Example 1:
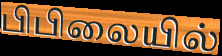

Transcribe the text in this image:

பிபிலையில்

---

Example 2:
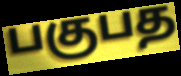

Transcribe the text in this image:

பகுபத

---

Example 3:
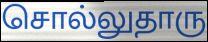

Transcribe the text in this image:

சொல்லுதாரு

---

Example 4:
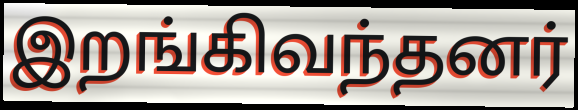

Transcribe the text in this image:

இறங்கிவந்தனர்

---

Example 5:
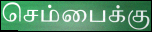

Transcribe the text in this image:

செம்பைக்கு